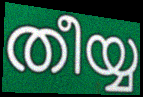
തീയ്യ